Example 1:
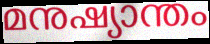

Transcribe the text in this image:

മനുഷ്യാന്തം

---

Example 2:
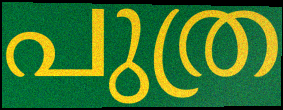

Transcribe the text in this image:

പുത്ര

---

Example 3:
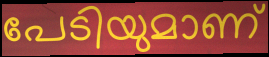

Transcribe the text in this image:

പേടിയുമാണ്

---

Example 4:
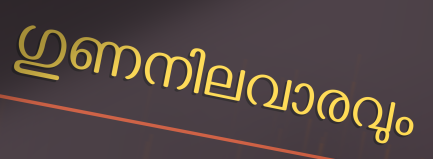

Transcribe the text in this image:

ഗുണനിലവാരവും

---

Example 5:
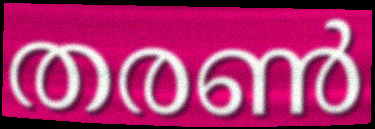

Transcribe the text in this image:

തരൺ